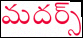
మదర్స్